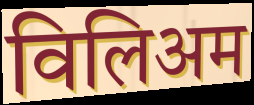
विलिअम